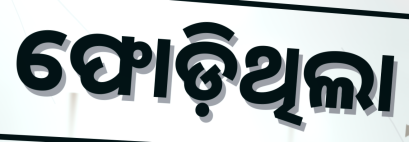
ଫୋଡ଼ିଥିଲା